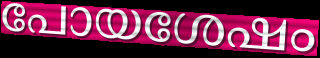
പോയശേഷം